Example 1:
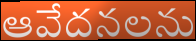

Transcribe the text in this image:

ఆవేదనలను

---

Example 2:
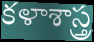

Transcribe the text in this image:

కళాశాస్త్ర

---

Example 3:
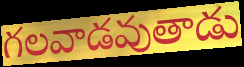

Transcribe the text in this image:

గలవాడవుతాడు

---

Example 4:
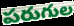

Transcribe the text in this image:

పరుగుల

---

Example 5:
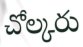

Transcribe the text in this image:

చోల్కరు